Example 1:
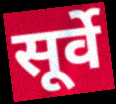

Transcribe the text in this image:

सूर्वे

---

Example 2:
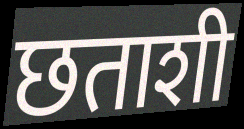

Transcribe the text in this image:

छताशी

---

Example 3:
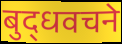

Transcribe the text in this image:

बुद्धवचने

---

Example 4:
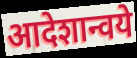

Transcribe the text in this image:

आदेशान्वये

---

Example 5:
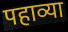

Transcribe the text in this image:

पहाव्या